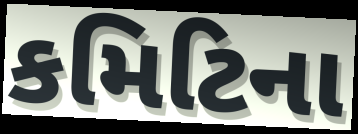
કમિટિના